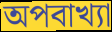
অপবাখ্যা